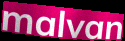
malvan